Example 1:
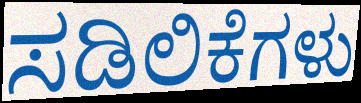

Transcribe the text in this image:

ಸಡಿಲಿಕೆಗಳು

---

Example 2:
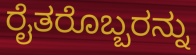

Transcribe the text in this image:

ರೈತರೊಬ್ಬರನ್ನು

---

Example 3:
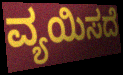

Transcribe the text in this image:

ವ್ಯಯಿಸದೆ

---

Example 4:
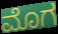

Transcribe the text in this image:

ಮೊಗ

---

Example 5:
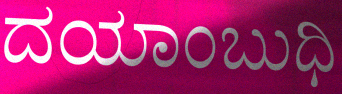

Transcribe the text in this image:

ದಯಾಂಬುಧಿ